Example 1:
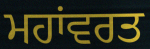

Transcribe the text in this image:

ਮਹਾਂਵਰਤ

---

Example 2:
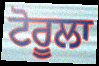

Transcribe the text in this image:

ਟੋਰੂਲਾ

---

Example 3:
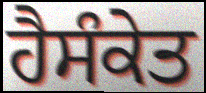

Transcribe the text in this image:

ਹੈਸੰਕੇਤ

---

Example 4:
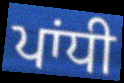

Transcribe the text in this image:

ਪਾਂਧੀ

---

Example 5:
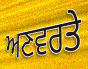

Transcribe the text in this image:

ਅਣਵਰਤੇ